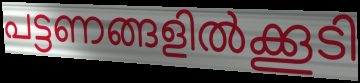
പട്ടണങ്ങളിൽക്കൂടി